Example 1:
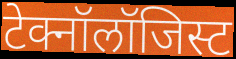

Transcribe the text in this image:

टेक्नॉलॉजिस्ट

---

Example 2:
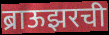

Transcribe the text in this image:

ब्राऊझरची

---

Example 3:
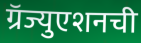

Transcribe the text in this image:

ग्रॅज्युएशनची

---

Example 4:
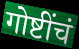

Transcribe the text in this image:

गोष्टींचं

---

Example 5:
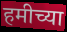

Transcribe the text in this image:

हमीच्या